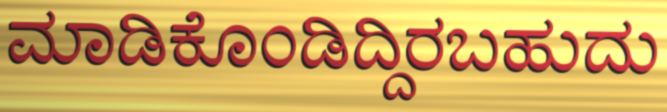
ಮಾಡಿಕೊಂಡಿದ್ದಿರಬಹುದು